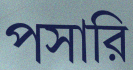
পসারি